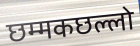
छम्मकछल्लो